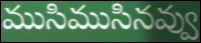
ముసిముసినవ్వు